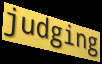
judging